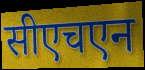
सीएचएन